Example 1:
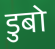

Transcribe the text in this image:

डुबो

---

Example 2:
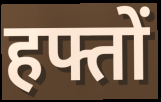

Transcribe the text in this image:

हफ्तों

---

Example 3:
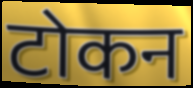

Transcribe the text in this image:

टोकन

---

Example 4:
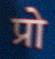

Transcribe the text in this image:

प्रो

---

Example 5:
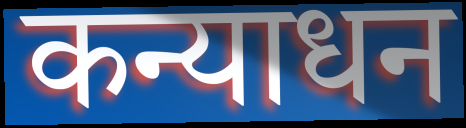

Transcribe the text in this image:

कन्याधन